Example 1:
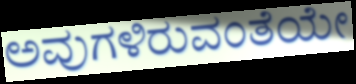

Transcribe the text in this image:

ಅವುಗಳಿರುವಂತೆಯೇ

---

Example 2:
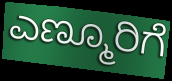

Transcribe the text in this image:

ಎಣ್ಮೂರಿಗೆ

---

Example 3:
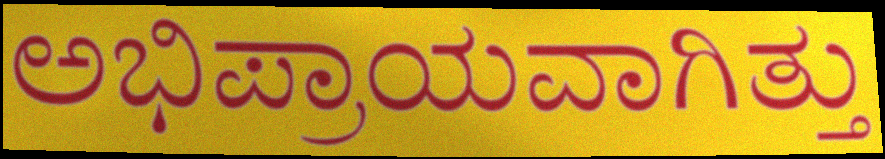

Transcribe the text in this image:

ಅಭಿಪ್ರಾಯವಾಗಿತ್ತು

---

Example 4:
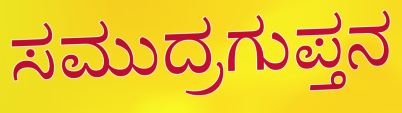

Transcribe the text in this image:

ಸಮುದ್ರಗುಪ್ತನ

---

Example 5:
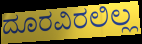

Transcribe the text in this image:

ದೂರವಿರಲಿಲ್ಲ